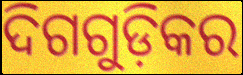
ଦିଗଗୁଡ଼ିକର